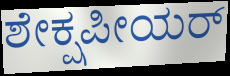
ಶೇಕ್ಷಪೀಯರ್